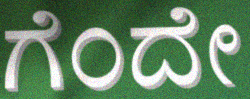
ಗೆಂದೇ